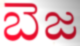
బెజ